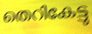
തെറികേട്ടു